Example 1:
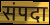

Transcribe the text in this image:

संपदा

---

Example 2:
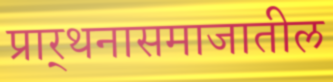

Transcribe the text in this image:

प्रार्थनासमाजातील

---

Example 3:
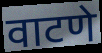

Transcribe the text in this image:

वाटणे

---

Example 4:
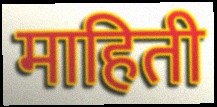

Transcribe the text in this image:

माहिती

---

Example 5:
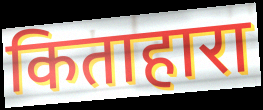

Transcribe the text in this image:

किताहारा